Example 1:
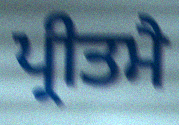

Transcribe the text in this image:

ਪ੍ਰੀਤਮੈ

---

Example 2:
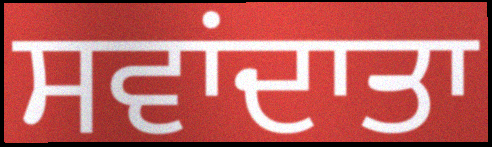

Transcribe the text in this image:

ਸਵਾਂਦਾਤਾ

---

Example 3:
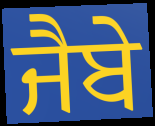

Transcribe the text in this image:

ਜੈਬੇ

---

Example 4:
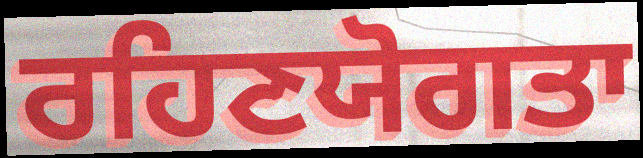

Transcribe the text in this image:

ਰਹਿਣਯੋਗਤਾ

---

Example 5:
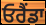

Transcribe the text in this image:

ਓਰੈਂਡਾ